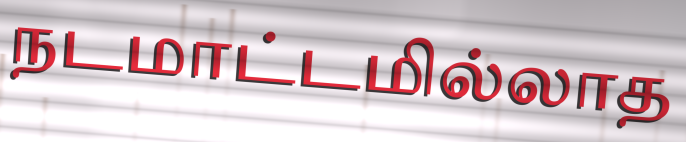
நடமாட்டமில்லாத